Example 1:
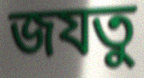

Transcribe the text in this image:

জযতু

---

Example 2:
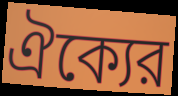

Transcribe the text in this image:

ঐক্যের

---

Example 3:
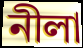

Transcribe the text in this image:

নীলা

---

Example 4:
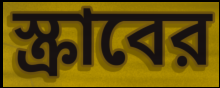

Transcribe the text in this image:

স্ক্রাবের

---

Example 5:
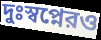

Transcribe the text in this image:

দুঃস্বপ্নেরও